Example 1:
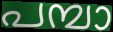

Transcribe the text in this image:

പമ്പാ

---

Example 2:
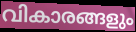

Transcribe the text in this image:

വികാരങ്ങളും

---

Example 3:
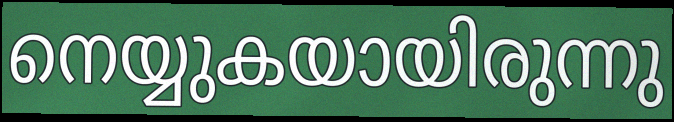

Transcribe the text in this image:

നെയ്യുകയായിരുന്നു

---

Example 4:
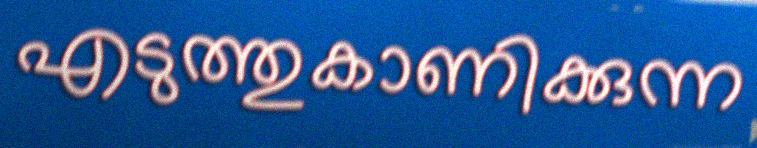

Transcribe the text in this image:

എടുത്തുകാണിക്കുന്ന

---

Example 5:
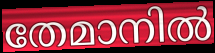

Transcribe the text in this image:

തേമാനിൽ